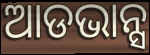
ଆଡଭାନ୍ସ